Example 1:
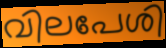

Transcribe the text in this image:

വിലപേശി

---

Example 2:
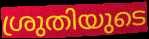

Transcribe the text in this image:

ശ്രുതിയുടെ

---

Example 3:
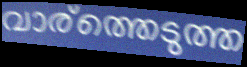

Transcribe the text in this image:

വാര്ത്തെടുത്ത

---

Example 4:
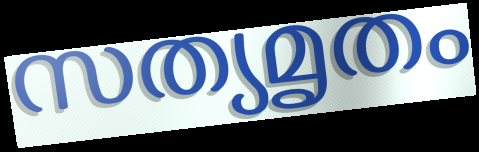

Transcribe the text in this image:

സത്യമൃതം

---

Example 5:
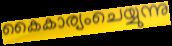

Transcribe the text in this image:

കൈകാര്യംചെയ്യുന്നു